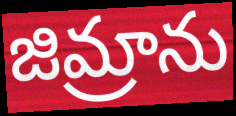
జిమ్రాను